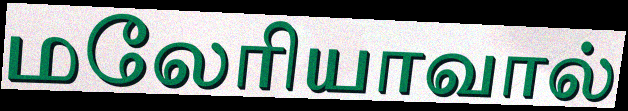
மலேரியாவால்